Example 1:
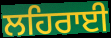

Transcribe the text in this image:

ਲਹਿਰਾਈ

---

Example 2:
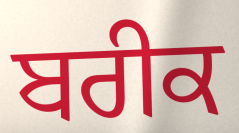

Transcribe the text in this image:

ਬਰੀਕ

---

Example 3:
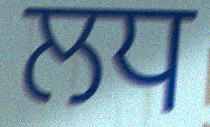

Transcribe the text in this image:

ਲਧ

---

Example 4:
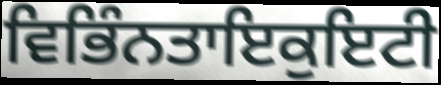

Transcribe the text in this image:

ਵਿਭਿੰਨਤਾਇਕੁਇਟੀ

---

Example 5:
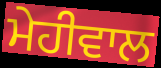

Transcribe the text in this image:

ਮੇਹੀਵਾਲ